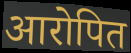
आरोपित